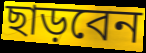
ছাড়বেন